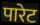
पारेट